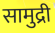
सामुद्री